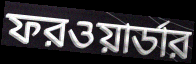
ফরওয়ার্ডার